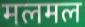
मलमल